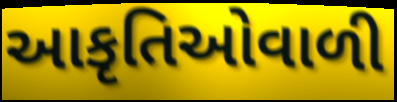
આકૃતિઓવાળી